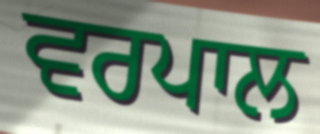
ਵਰਪਾਲ